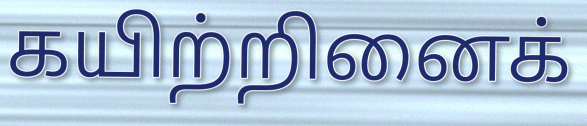
கயிற்றினைக்